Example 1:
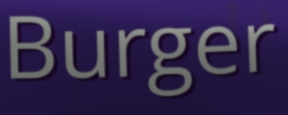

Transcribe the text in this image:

Burger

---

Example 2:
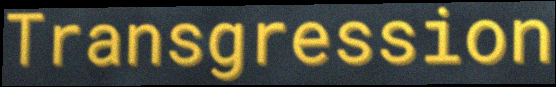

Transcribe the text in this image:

Transgression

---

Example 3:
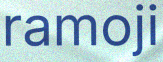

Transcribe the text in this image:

ramoji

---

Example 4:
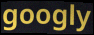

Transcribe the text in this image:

googly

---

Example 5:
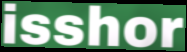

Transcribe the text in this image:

isshor